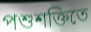
পশুশক্তিতে